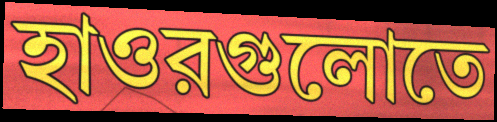
হাওরগুলোতে